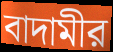
বাদামীর